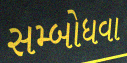
સમ્બોધવા